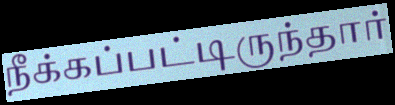
நீக்கப்பட்டிருந்தார்